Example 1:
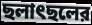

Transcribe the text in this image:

ছলাৎছলের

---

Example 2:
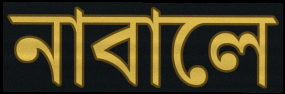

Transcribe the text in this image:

নাবালে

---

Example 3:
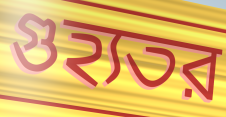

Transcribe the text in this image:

গুহ্যতর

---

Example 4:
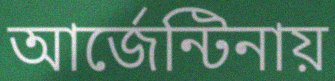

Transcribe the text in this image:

আর্জেন্টিনায়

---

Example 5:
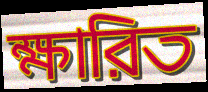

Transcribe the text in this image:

ক্ষারিত